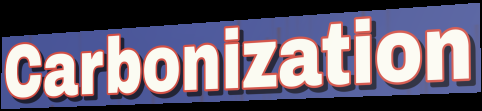
Carbonization